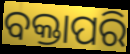
ବକ୍ତାପରି